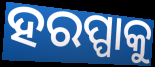
ହରପ୍ପାକୁ